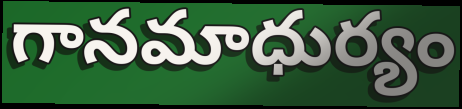
గానమాధుర్యం